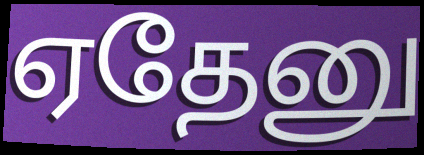
ஏதேனு